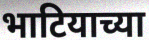
भाटियाच्या